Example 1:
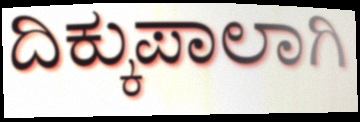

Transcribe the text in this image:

ದಿಕ್ಕುಪಾಲಾಗಿ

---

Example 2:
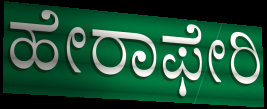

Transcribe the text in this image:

ಹೇರಾಫೇರಿ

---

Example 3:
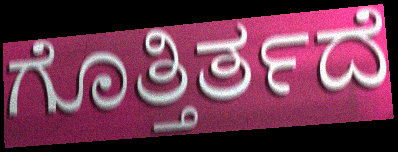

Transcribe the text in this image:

ಗೊತ್ತಿರ್ತದೆ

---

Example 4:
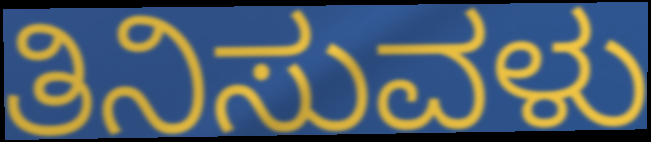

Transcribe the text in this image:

ತಿನಿಸುವಳು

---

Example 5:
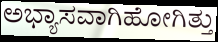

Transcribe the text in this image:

ಅಭ್ಯಾಸವಾಗಿಹೋಗಿತ್ತು